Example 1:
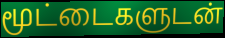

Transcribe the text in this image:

மூட்டைகளுடன்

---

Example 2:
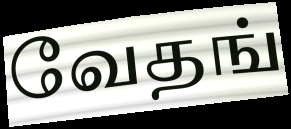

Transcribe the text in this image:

வேதங்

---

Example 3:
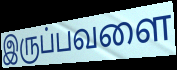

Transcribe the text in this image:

இருப்பவளை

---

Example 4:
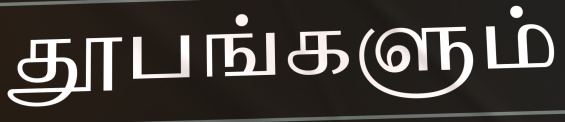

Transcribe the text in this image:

தூபங்களும்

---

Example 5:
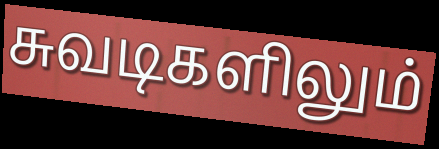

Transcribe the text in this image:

சுவடிகளிலும்